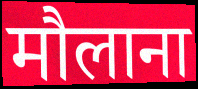
मौलाना